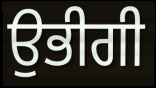
ਉਭੀਗੀ